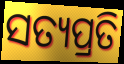
ସତ୍ୟପ୍ରତି